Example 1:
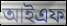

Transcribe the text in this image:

আইএফ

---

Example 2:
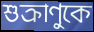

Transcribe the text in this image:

শুক্রাণুকে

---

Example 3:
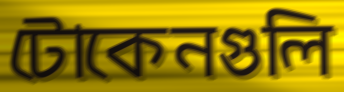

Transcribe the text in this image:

টোকেনগুলি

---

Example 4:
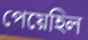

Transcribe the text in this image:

পেয়েহিল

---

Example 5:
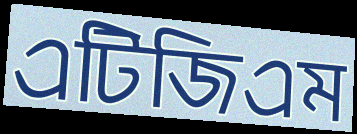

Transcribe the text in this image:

এটিজিএম